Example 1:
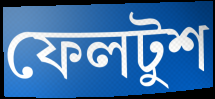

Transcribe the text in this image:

ফেলটুশ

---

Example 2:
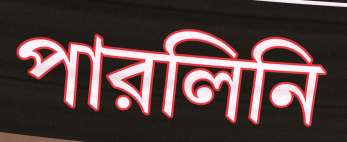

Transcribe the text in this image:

পারলিনি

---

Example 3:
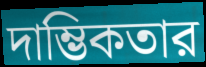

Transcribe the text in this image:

দাম্ভিকতার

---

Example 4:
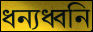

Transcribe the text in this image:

ধন্যধ্বনি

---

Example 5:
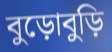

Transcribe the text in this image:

বুড়োবুড়ি